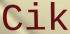
Cik